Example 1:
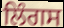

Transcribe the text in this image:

ਲਿੰਗਸ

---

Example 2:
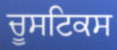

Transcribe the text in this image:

ਚੂਸਟਿਕਸ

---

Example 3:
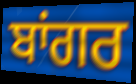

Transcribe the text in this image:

ਬਾਂਗਰ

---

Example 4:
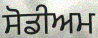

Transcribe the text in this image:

ਸੋਡੀਅਮ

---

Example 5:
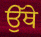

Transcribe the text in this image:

ਉੁੱਥੇ